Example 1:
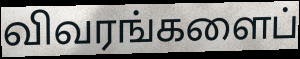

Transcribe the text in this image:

விவரங்களைப்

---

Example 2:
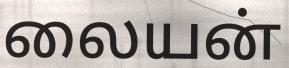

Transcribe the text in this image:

லையன்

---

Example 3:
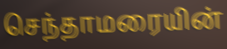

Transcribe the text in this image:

செந்தாமரையின்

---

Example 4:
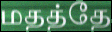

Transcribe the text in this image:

மதத்தே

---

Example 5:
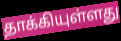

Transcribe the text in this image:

தாக்கியுள்ளது